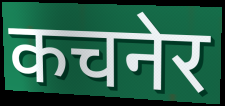
कचनेर